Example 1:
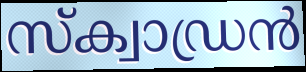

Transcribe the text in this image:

സ്ക്വാഡ്രൻ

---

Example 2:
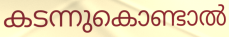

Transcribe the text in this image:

കടന്നുകൊണ്ടാൽ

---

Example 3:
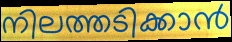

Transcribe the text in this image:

നിലത്തടിക്കാൻ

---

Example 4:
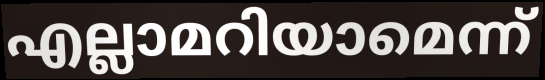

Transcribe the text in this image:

എല്ലാമറിയാമെന്ന്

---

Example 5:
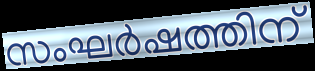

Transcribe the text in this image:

സംഘർഷത്തിന്